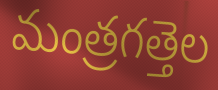
మంత్రగత్తెల